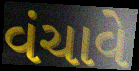
વંચાવે